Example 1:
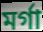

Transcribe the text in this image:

মৰ্গা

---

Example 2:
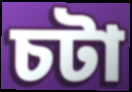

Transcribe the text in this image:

চটা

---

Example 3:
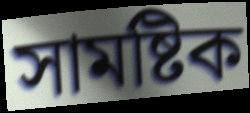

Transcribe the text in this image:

সামষ্টিক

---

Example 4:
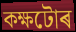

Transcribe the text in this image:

কক্ষটোৰ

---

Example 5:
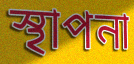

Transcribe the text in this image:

স্থাপনা